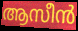
ആസീൻ